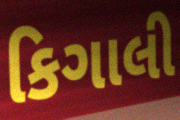
કિગાલી